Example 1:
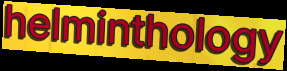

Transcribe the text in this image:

helminthology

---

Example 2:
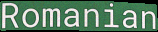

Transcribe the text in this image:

Romanian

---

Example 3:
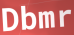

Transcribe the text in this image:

Dbmr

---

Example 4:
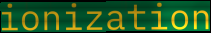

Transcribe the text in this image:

ionization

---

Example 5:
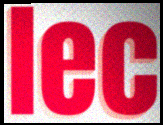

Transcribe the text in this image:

lec